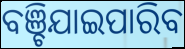
ବଞ୍ଚିଯାଇପାରିବ